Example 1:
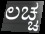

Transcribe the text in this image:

ಲಚ್ಚ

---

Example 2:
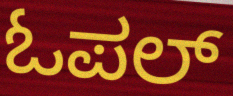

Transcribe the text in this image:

ಓಪಲ್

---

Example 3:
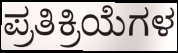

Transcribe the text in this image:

ಪ್ರತಿಕ್ರಿಯೆಗಳ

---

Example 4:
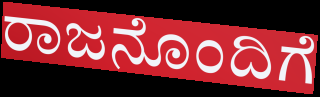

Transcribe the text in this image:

ರಾಜನೊಂದಿಗೆ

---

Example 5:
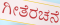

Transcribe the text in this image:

ಗೀತೆರಚನೆ